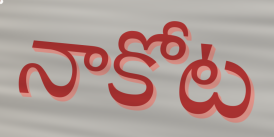
నాకోట